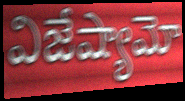
విజేష్యామో